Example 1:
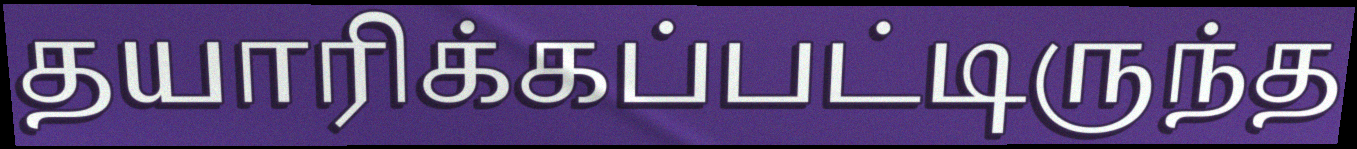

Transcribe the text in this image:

தயாரிக்கப்பட்டிருந்த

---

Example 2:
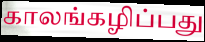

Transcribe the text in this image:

காலங்கழிப்பது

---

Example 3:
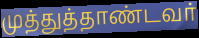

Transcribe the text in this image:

முத்துத்தாண்டவர்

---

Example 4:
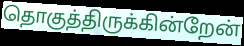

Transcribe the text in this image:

தொகுத்திருக்கின்றேன்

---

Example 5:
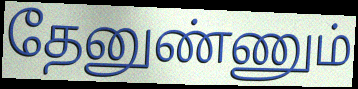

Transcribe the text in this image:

தேனுண்ணும்